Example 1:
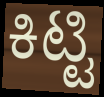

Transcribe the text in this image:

ಕಿಟ್ಟಿ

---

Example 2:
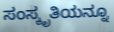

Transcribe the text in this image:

ಸಂಸ್ಕೃತಿಯನ್ನೂ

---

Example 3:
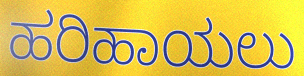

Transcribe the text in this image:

ಹರಿಹಾಯಲು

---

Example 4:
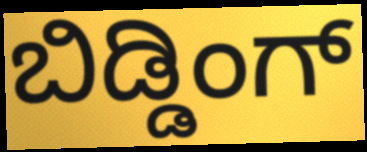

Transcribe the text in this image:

ಬಿಡ್ಡಿಂಗ್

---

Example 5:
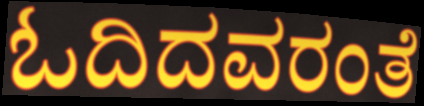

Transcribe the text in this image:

ಓದಿದವರಂತೆ